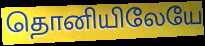
தொனியிலேயே